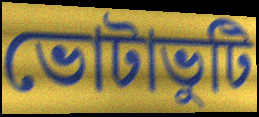
ভোটাভুটি